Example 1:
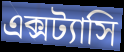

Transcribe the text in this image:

এক্সট্যাসি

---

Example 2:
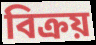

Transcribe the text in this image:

বিক্রয়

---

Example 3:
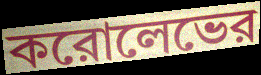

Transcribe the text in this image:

করোলেভের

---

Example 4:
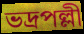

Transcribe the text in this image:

ভদ্রপল্লী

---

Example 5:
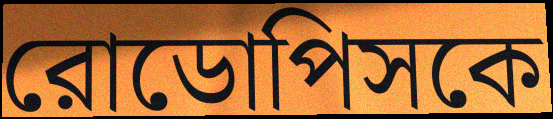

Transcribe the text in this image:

রোডোপিসকে